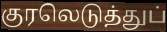
குரலெடுத்துப்